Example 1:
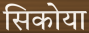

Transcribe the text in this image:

सिकोया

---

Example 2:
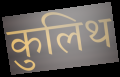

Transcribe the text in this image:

कुलिथ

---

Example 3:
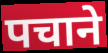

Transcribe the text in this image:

पचाने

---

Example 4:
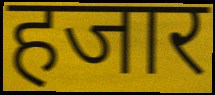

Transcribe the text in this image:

हजार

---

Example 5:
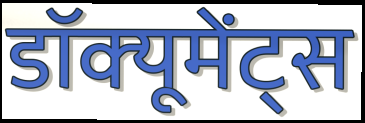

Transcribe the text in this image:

डॉक्यूमेंट्स